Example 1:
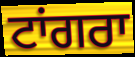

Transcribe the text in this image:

ਟਾਂਗਰਾ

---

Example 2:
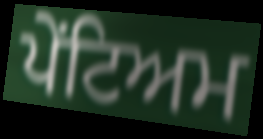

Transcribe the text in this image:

ਪੇਂਟਿਅਮ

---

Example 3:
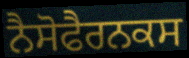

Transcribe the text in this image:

ਨੈਸੋਫੈਰਨਕਸ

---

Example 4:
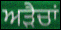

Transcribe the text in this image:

ਅੜੈਚਾਂ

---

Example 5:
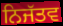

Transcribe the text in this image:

ਨਿਜੱਤਵ